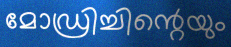
മോഡ്രിച്ചിന്റെയും